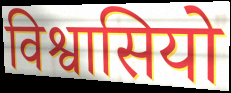
विश्वासियो